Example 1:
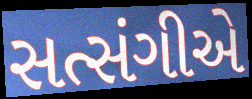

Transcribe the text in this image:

સત્સંગીએ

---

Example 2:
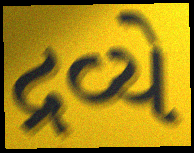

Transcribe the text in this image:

દ્રવ્યે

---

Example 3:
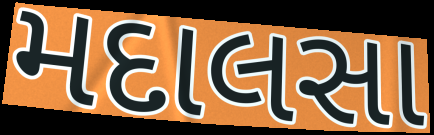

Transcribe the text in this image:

મદાલસા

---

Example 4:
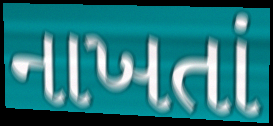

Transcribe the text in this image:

નાખતાં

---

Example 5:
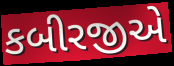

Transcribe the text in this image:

કબીરજીએ